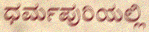
ಧರ್ಮಪುರಿಯಲ್ಲಿ